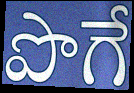
పొగే